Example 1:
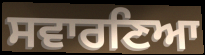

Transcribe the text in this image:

ਸਵਾਰਣਿਆ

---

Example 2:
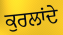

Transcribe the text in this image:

ਕੁਰਲਾਂਦੇ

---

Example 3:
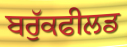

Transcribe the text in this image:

ਬਰੁੱਕਫੀਲਡ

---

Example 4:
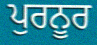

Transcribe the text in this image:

ਪੁਰਨੂਰ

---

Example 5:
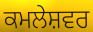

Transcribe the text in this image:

ਕਮਲੇਸ਼ਵਰ